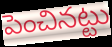
పెంచినట్టు